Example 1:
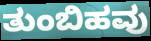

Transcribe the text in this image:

ತುಂಬಿಹವು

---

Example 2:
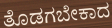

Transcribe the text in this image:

ತೊಡಗಬೇಕಾದ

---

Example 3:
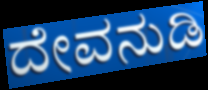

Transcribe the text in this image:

ದೇವನುಡಿ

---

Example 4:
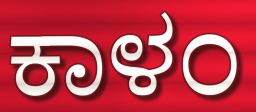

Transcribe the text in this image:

ಕಾಳಂ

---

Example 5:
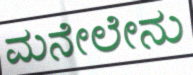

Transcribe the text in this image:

ಮನೇಲೇನು